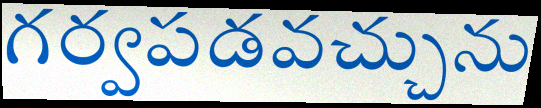
గర్వపడవచ్చును